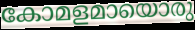
കോമളമായൊരു